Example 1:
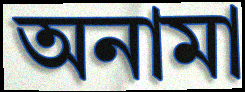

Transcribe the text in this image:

অনামা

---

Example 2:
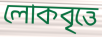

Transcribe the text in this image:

লোকবৃত্তে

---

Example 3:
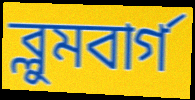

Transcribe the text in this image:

ব্লুমবার্গ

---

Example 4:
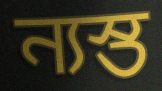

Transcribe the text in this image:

ন্যস্ত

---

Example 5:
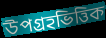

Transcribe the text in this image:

উপগ্রহভিত্তিক